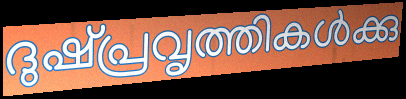
ദുഷ്പ്രവൃത്തികൾക്കു